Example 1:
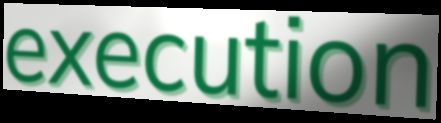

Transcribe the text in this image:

execution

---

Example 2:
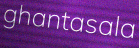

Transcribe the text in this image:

ghantasala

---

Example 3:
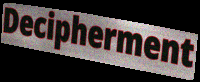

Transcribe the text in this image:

Decipherment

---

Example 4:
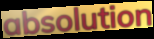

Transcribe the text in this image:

absolution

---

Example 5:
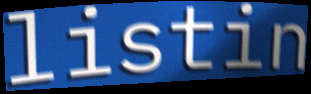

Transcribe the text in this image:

listin